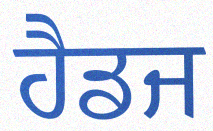
ਹੈਡਜ